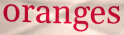
oranges